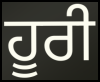
ਹੂਰੀ